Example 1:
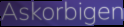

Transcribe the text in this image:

Askorbigen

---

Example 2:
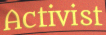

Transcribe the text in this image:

Activist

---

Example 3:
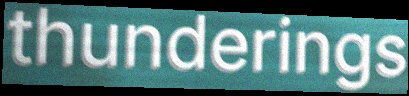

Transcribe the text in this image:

thunderings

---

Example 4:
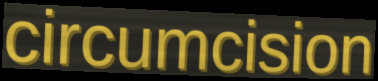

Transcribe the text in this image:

circumcision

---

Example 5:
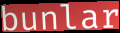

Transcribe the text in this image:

bunlar